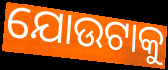
ଯୋଉଟାକୁ